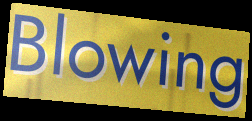
Blowing